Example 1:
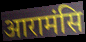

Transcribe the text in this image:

आरामंसि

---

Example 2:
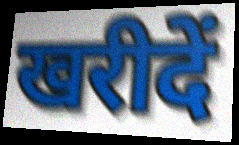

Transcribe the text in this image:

खरीदें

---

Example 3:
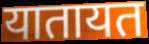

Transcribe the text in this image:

यातायत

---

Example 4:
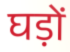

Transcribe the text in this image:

घड़ों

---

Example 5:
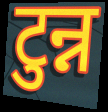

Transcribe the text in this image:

टुन्न